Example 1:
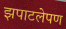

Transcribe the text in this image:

झपाटलेपण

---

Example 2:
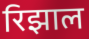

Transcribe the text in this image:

रिझाल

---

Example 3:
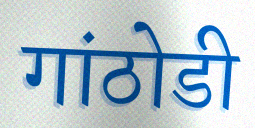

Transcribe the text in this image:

गांठोडी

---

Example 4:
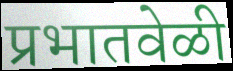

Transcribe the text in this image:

प्रभातवेळी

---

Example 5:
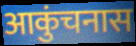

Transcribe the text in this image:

आकुंचनास